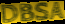
DBSA